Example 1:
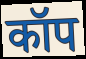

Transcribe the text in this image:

कॉप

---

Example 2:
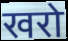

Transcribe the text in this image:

खरो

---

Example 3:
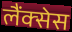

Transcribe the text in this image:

लैंक्‍सेस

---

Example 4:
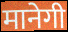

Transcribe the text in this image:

मानेगी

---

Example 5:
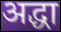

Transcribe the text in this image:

अद्धा